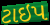
ટાઇપ